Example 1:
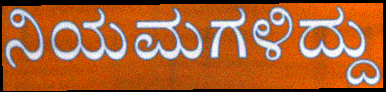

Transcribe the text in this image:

ನಿಯಮಗಳಿದ್ದು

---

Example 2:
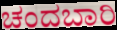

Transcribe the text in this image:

ಚಂದಬಾರಿ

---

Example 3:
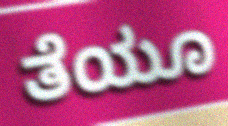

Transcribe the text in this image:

ತೆಯೂ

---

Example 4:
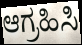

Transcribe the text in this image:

ಆಗ್ರಹಿಸಿ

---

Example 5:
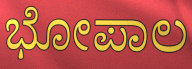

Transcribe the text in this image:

ಭೋಪಾಲ